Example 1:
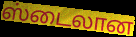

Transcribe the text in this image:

ஸ்டைலான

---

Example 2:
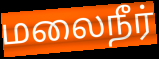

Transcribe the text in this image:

மலைநீர்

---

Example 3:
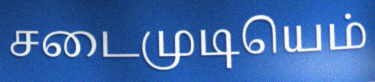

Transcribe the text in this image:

சடைமுடியெம்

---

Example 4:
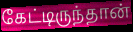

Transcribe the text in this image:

கேட்டிருந்தான்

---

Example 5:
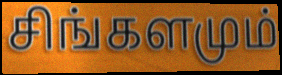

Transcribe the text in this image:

சிங்களமும்